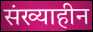
संख्याहीन